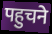
पहुचने